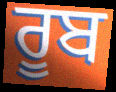
ਰੂਬ